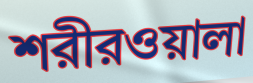
শরীরওয়ালা